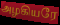
அழகியரே